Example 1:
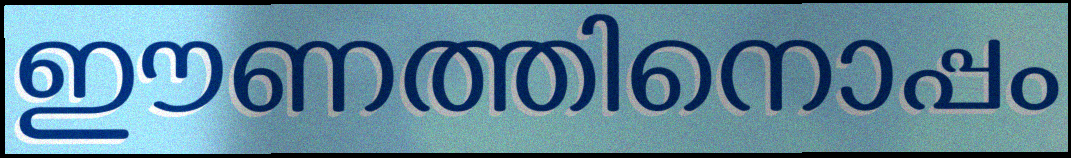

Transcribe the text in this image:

ഈണത്തിനൊപ്പം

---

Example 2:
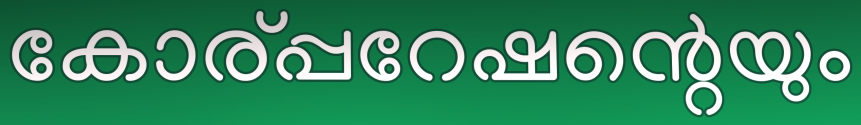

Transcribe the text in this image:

കോര്പ്പറേഷന്റെയും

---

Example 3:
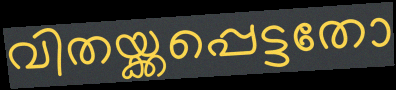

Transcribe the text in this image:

വിതയ്ക്കപ്പെട്ടതോ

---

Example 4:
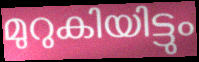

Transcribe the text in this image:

മുറുകിയിട്ടും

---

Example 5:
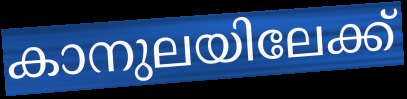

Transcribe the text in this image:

കാനുലയിലേക്ക്